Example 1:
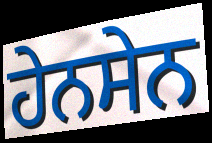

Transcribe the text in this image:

ਹੇਨਸੇਨ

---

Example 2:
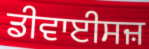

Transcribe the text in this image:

ਡੀਵਾਈਸਜ਼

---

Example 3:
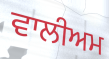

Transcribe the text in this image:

ਵਾਲੀਅਮ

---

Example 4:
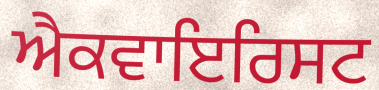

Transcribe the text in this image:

ਐਕਵਾਇਰਿਸਟ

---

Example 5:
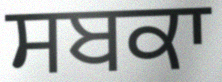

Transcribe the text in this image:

ਸਬਕਾ